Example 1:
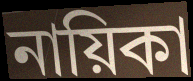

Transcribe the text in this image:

নায়িকা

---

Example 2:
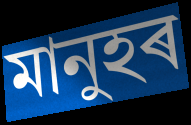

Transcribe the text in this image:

মানুহৰ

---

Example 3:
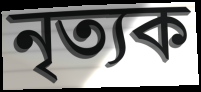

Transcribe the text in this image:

নৃত্যক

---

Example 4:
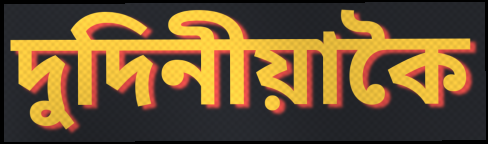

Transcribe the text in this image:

দুদিনীয়াকৈ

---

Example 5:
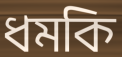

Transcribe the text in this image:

ধমকি